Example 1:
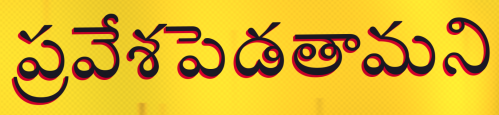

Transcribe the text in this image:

ప్రవేశపెడతామని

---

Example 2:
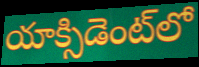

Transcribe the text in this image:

యాక్సిడెంట్‌లో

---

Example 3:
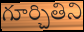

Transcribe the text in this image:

గూర్చితిని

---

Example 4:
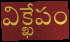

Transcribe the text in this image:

విక్ఖేపం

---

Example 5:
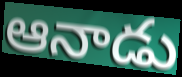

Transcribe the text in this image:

ఆనాడు